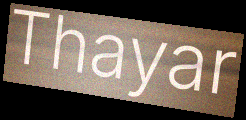
Thayar